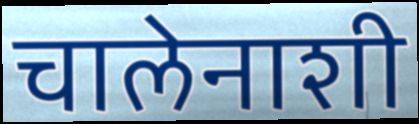
चालेनाशी